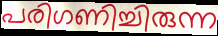
പരിഗണിച്ചിരുന്ന